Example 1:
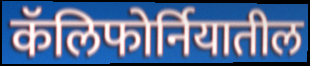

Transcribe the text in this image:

कॅलिफोर्नियातील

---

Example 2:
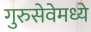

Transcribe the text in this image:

गुरुसेवेमध्ये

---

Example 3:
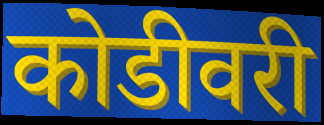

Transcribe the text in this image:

कोडीवरी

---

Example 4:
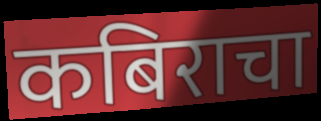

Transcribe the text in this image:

कबिराचा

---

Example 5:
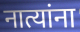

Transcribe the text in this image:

नात्यांना